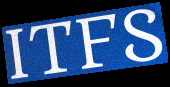
ITFS